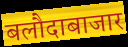
बलौदाबाजार